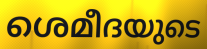
ശെമീദയുടെ